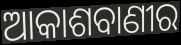
ଆକାଶବାଣୀର